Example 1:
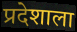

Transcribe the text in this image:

प्रदेशाला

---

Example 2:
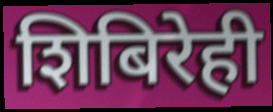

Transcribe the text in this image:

शिबिरेही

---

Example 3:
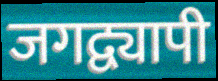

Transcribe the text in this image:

जगद्व्यापी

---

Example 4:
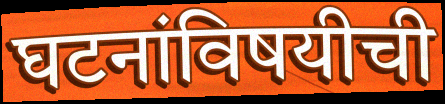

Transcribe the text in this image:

घटनांविषयीची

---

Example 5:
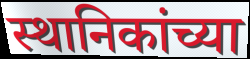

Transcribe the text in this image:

स्थानिकांच्या